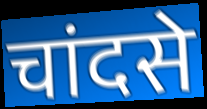
चांदसे